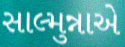
સાલ્મુન્નાએ